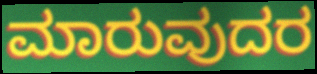
ಮಾರುವುದರ